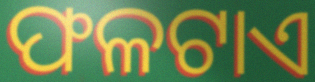
ଫଳଟାଏ